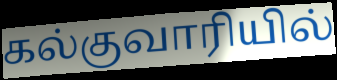
கல்குவாரியில்